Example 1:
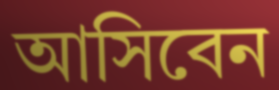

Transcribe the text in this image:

আসিবেন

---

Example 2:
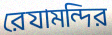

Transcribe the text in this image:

রেযামন্দির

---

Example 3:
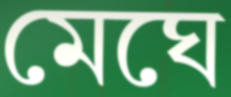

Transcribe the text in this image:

মেঘে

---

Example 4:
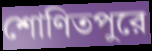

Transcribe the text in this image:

শোণিতপুরে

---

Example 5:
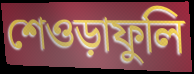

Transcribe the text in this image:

শেওড়াফুলি